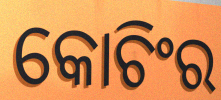
କୋଚିଂର